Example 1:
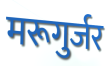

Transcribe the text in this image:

मरूगुर्जर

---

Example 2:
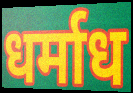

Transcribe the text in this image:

धर्माध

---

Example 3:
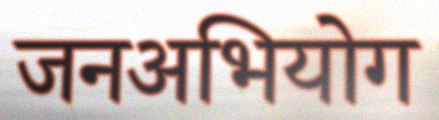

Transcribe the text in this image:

जनअभियोग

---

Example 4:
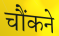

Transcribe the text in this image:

चौंकने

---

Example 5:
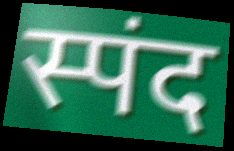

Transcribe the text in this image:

स्पंद